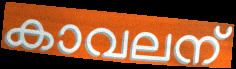
കാവലന്